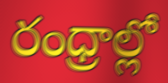
రంధ్రాల్లో